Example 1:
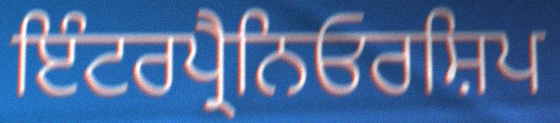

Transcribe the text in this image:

ਇੰਟਰਪ੍ਰੈਨਿਓਰਸ਼ਿਪ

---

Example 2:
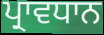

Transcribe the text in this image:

ਪ੍ਰਾਵਧਾਨ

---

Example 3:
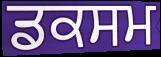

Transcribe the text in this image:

ਡਕਸਮ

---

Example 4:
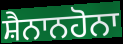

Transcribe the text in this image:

ਸ਼ੈਨਾਨਹੋਨਾ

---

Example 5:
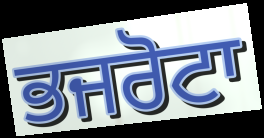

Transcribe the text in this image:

ਭਜਰੋਟਾ